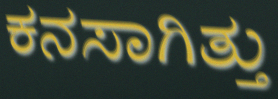
ಕನಸಾಗಿತ್ತು